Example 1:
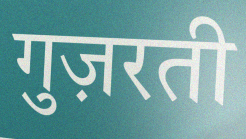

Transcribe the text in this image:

गुज़रती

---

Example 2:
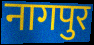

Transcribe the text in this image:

नागपुर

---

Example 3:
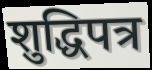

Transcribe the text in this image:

शुद्धिपत्र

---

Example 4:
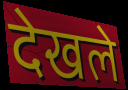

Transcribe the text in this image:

देखले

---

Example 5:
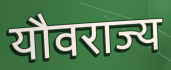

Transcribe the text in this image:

यौवराज्य